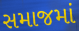
સમાજમાં